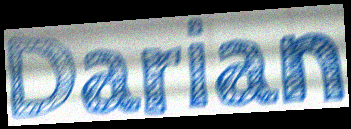
Darian